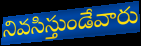
నివసిస్తుండేవారు